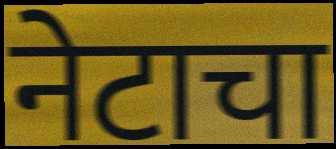
नेटाचा